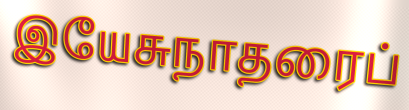
இயேசுநாதரைப்